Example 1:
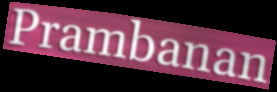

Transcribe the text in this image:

Prambanan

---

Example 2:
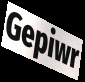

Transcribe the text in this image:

Gepiwr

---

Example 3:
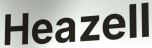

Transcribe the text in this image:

Heazell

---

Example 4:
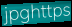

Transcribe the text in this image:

jpghttps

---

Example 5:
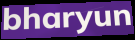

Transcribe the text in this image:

bharyun